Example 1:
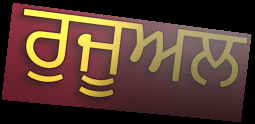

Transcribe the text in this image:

ਰੁਜੂਅਲ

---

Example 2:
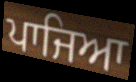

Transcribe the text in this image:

ਪਾਜਿਆ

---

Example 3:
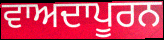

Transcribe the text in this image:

ਵਾਅਦਾਪੂਰਨ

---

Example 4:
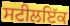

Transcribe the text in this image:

ਸਟੀਲਇੱਕ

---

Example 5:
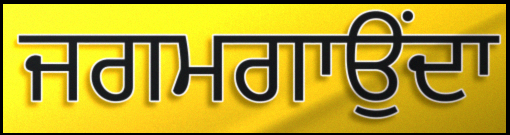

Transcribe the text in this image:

ਜਗਮਗਾਉਂਦਾ